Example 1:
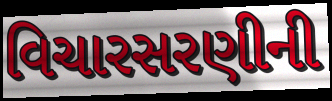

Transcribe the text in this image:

વિચારસરણીની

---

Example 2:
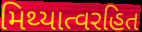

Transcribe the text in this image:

મિથ્યાત્વરહિત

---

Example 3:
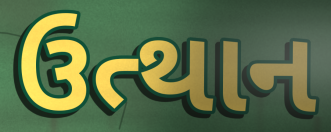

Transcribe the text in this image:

ઉત્થાન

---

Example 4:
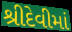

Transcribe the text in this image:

શ્રીદેવીમાં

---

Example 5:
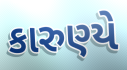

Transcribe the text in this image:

કારુણ્યે